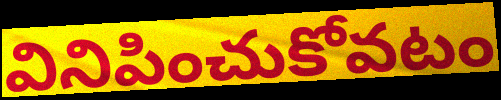
వినిపించుకోవటం